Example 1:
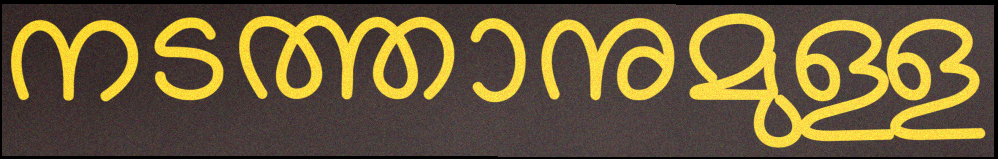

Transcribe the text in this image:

നടത്താനുമുള്ള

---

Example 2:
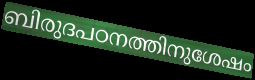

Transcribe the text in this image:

ബിരുദപഠനത്തിനുശേഷം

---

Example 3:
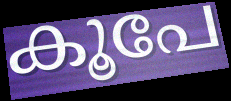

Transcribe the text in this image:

കൂപേ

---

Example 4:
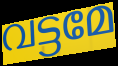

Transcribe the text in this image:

വട്ടമേ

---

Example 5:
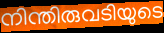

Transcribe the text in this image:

നിന്തിരുവടിയുടെ